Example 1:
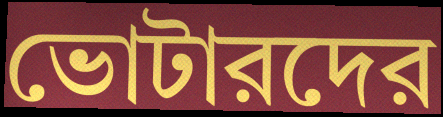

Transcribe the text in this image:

ভোটারদের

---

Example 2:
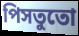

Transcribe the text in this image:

পিসতুতো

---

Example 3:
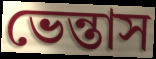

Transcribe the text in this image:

ভেন্তাস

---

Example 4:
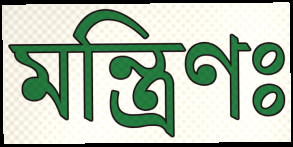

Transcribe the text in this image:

মন্ত্রিণঃ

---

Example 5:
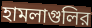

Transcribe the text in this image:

হামলাগুলির